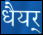
धैयर्